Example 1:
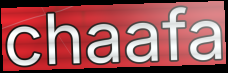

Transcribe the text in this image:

chaafa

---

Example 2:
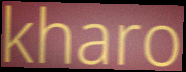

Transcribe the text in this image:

kharo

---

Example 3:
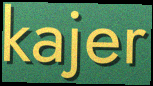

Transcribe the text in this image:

kajer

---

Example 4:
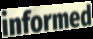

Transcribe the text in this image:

informed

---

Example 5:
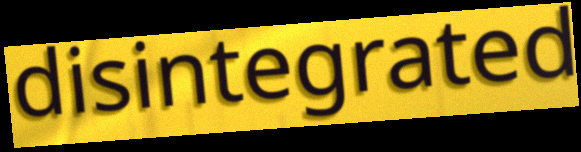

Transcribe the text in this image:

disintegrated